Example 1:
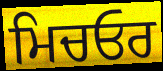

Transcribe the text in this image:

ਮਿਚਓਰ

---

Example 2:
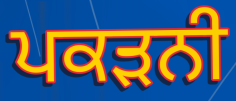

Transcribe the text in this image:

ਪਕੜਨੀ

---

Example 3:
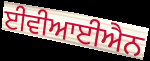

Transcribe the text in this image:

ਈਵੀਆਈਐਨ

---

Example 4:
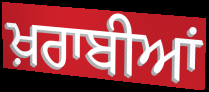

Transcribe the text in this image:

ਖ਼ਰਾਬੀਆਂ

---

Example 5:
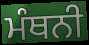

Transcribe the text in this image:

ਮੰਥਨੀ